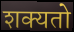
शक्यतो